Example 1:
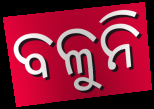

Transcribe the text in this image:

ବଳୁନି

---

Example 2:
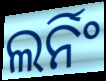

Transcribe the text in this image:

ଲର୍ନିଂ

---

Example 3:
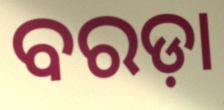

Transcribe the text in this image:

ବରଡ଼ା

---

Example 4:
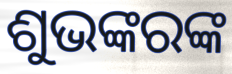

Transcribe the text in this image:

ଶୁଭଙ୍କରଙ୍କ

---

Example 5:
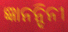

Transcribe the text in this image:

ଜ୍ଞାନନ୍ଦିନୀ